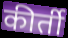
कीर्ती